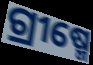
ଗ୍ରୀଷ୍ମେ